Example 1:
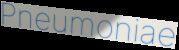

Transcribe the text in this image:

Pneumoniae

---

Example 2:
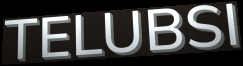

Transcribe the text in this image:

TELUBSI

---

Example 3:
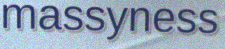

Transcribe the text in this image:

massyness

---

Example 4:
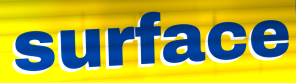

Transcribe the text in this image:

surface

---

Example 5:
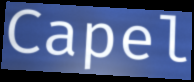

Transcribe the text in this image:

Capel